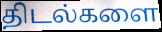
திடல்களை